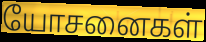
யோசனைகள்